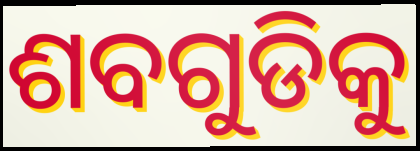
ଶବଗୁଡିକୁ